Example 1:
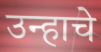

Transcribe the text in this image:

उन्हाचे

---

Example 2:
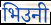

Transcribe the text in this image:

भिउनी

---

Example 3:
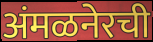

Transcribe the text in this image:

अंमळनेरची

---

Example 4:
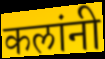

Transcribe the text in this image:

कलांनी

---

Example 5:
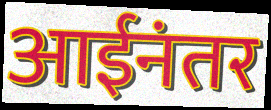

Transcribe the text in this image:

आईनंतर